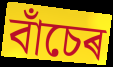
বাঁচেৰ